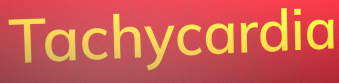
Tachycardia